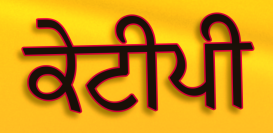
ਕੇਟੀਪੀ